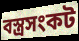
বস্ত্রসংকট